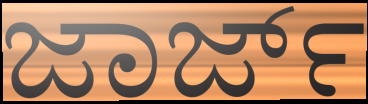
ಜಾರ್ಜ್